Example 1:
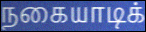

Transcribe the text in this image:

நகையாடிக்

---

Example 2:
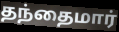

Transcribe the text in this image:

தந்தைமார்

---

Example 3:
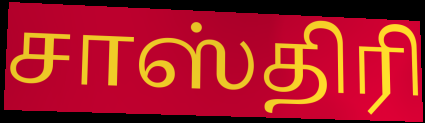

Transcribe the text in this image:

சாஸ்திரி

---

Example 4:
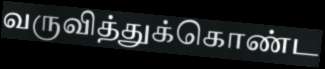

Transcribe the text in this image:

வருவித்துக்கொண்ட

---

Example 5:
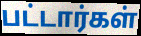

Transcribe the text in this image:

பட்டார்கள்